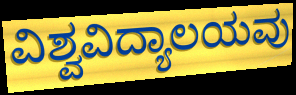
ವಿಶ್ವವಿದ್ಯಾಲಯವು